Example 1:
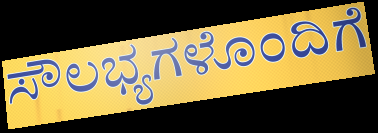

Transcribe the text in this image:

ಸೌಲಭ್ಯಗಳೊಂದಿಗೆ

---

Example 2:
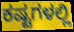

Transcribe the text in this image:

ಕಷ್ಟಗಳಲ್ಲಿ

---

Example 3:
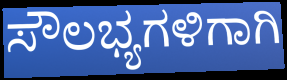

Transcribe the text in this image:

ಸೌಲಭ್ಯಗಳಿಗಾಗಿ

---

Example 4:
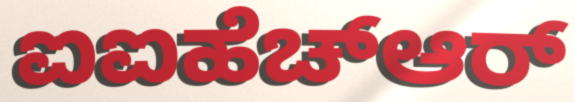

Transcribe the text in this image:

ಐಐಹೆಚ್ಆರ್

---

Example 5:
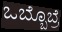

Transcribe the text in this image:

ಒಬ್ಬೊಬ್ರೆ